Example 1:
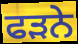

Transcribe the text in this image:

ਫੜਨੇ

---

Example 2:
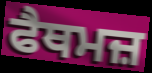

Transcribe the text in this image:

ਫੈਥਮਜ਼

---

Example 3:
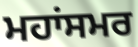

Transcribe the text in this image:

ਮਹਾਂਸਮਰ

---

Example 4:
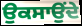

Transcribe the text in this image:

ਉਕਸਾਉਂਦੇ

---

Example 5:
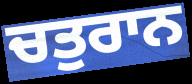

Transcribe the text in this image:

ਚਤੁਰਾਨ